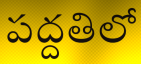
పద్దతిలో